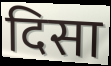
दिसा